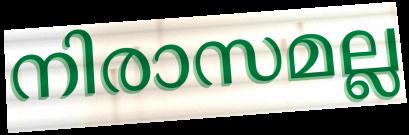
നിരാസമല്ല